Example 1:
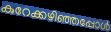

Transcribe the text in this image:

കുറേക്കഴിഞ്ഞപ്പോൾ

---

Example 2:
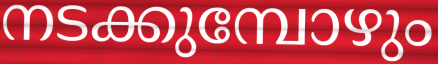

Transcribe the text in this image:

നടക്കുമ്പോഴും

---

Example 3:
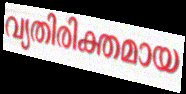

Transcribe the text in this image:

വ്യതിരിക്തമായ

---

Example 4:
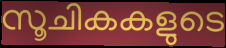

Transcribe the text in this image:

സൂചികകളുടെ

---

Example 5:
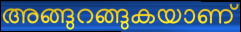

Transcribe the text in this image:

അങ്ങുറങ്ങുകയാണ്